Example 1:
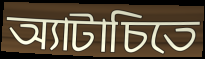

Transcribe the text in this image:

অ্যাটাচিতে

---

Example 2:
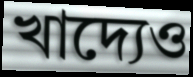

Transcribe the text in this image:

খাদ্যেও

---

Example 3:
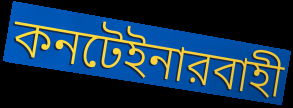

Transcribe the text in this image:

কনটেইনারবাহী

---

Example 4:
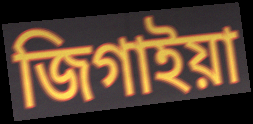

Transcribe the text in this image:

জিগাইয়া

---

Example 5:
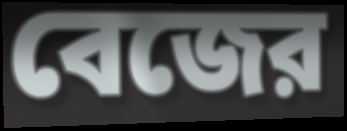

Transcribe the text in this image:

বেজের